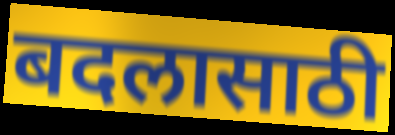
बदलासाठी